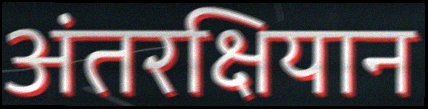
अंतरक्षियान